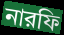
নারফি